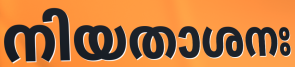
നിയതാശനഃ